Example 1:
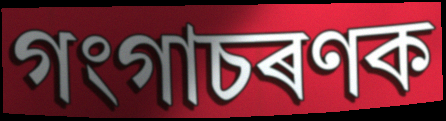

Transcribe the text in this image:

গংগাচৰণক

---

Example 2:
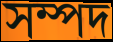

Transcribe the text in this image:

সম্পদ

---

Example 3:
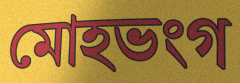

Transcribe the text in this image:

মোহভংগ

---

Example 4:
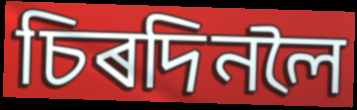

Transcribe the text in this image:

চিৰদিনলৈ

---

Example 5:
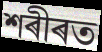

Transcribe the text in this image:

শৰীৰত